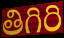
తిగిరి